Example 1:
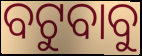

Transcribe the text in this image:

ବଟୁବାବୁ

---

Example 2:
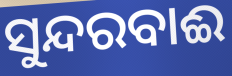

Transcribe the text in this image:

ସୁନ୍ଦରବାଈ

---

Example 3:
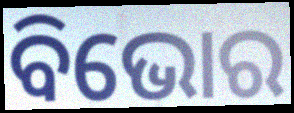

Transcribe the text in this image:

ବିଭୋର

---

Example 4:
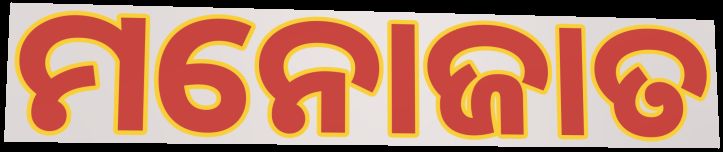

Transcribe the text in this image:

ମନୋଜାତ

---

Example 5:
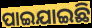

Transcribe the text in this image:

ପାଇଯାଇଛି